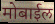
मोबाईल